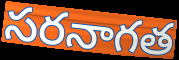
సరనాగత